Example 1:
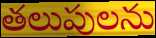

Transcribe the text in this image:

తలుపులను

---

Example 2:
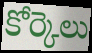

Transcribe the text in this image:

కోర్కెలు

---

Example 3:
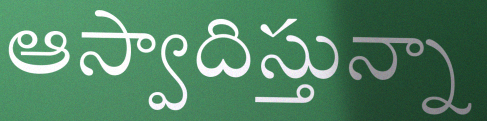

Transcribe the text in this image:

ఆస్వాదిస్తున్నా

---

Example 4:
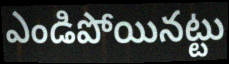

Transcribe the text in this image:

ఎండిపోయినట్టు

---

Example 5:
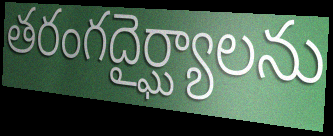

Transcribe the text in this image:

తరంగదైర్ఘ్యాలను